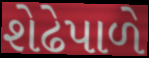
શેઢેપાળે